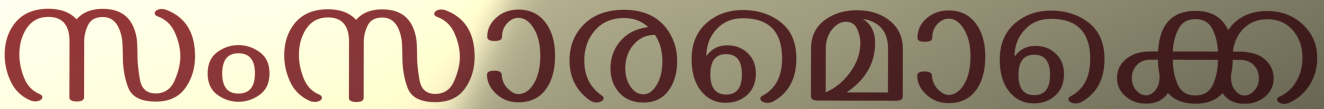
സംസാരമൊക്കെ